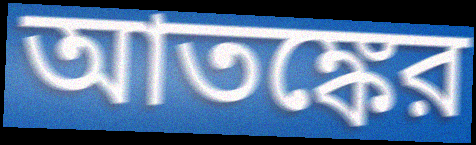
আতঙ্কের